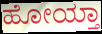
ಹೋಯ್ತಾ